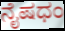
ನೈಷಧಂ